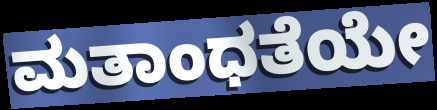
ಮತಾಂಧತೆಯೇ